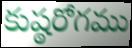
కుష్ఠరోగము